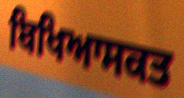
ਬਿਖਿਆਸਕਤ